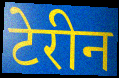
टेरीन